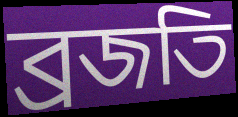
ব্রজতি